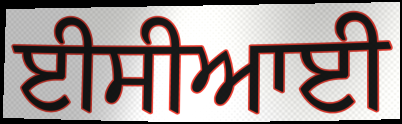
ਈਸੀਆਈ